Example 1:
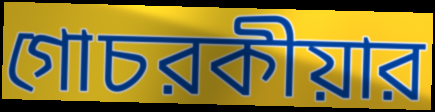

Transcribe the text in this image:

গোচরকীয়ার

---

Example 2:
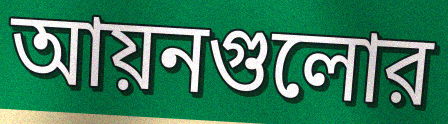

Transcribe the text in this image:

আয়নগুলোর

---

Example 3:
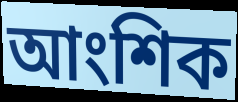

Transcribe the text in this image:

আংশিক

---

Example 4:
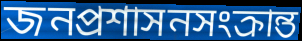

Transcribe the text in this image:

জনপ্রশাসনসংক্রান্ত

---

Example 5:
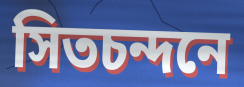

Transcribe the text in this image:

সিতচন্দনে